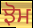
ਝੋਮ